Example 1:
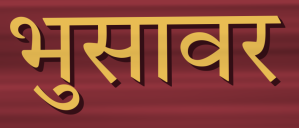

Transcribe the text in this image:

भुसावर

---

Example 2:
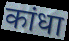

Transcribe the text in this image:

कांधा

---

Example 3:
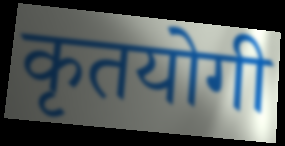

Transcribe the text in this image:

कृतयोगी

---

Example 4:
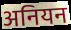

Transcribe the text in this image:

अनियन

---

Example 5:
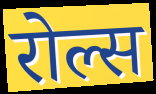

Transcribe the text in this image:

रोल्स